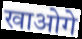
खाओगे